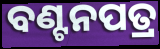
ବଣ୍ଟନପତ୍ର